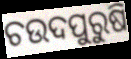
ଚଉଦପୁରୁଷି